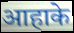
आहाके